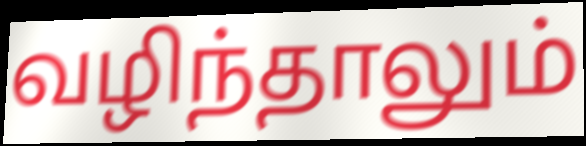
வழிந்தாலும்